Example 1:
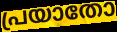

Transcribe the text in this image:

പ്രയാതോ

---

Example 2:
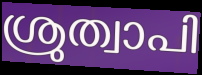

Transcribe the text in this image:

ശ്രുത്വാപി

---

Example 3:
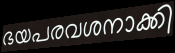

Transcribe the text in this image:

ഭയപരവശനാക്കി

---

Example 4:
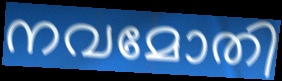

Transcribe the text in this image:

നവമോതി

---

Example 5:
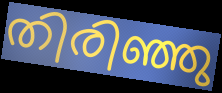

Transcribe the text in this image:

തിരിഞ്ഞു